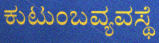
ಕುಟುಂಬವ್ಯವಸ್ಥೆ